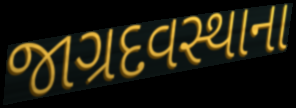
જાગ્રદવસ્થાના